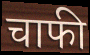
चाफी